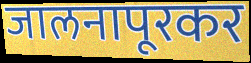
जालनापूरकर